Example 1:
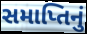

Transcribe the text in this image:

સમાપ્તિનું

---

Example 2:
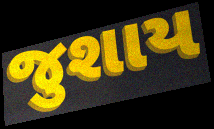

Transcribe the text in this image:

જુશાય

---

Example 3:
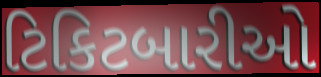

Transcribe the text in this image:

ટિકિટબારીઓ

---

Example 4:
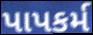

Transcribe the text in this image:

પાપકર્મ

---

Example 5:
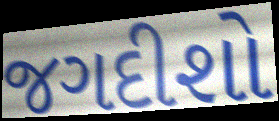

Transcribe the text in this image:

જગદીશો